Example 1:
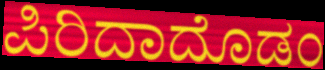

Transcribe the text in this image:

ಪಿರಿದಾದೊಡಂ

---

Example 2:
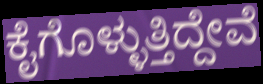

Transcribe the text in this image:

ಕೈಗೊಳ್ಳುತ್ತಿದ್ದೇವೆ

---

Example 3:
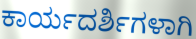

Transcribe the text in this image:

ಕಾರ್ಯದರ್ಶಿಗಳಾಗಿ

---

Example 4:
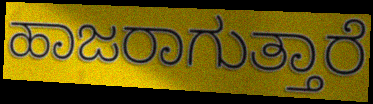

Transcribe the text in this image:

ಹಾಜರಾಗುತ್ತಾರೆ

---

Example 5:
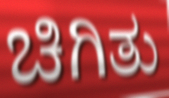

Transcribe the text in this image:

ಚಿಗಿತು